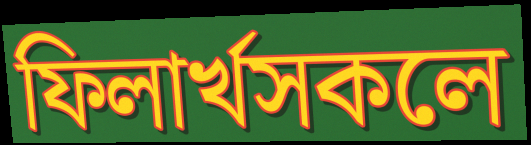
ফিলাৰ্খসকলে